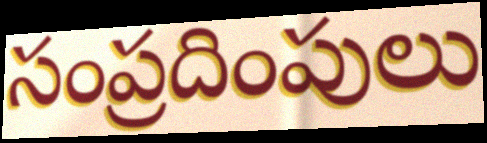
సంప్రదింపులు